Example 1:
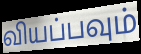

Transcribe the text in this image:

வியப்பவும்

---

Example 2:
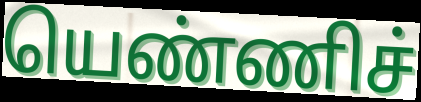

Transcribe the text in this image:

யெண்ணிச்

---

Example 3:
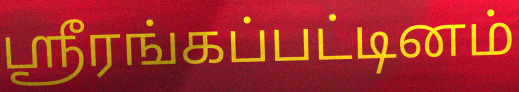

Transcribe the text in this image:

ஸ்ரீரங்கப்பட்டினம்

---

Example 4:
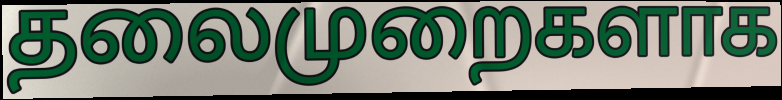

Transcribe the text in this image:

தலைமுறைகளாக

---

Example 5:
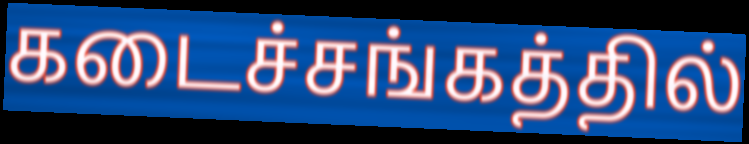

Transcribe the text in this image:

கடைச்சங்கத்தில்